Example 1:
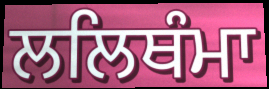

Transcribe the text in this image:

ਲਲਿਥੰਮਾ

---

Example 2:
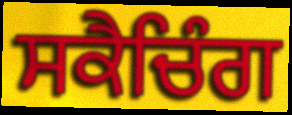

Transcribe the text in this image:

ਸਕੈਚਿੰਗ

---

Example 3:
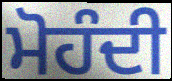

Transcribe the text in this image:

ਮੋਹੰਦੀ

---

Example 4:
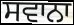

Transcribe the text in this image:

ਸਵਾਨਾ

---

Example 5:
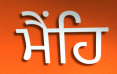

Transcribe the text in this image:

ਮੈਂਹਿ